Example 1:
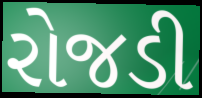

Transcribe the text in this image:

રોજડી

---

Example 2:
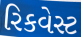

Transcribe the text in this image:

રિકવેસ્ટ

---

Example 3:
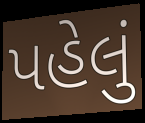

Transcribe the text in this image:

પહેલું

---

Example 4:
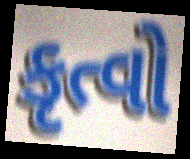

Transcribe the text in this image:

કૃત્વો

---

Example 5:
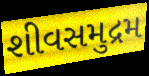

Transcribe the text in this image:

શીવસમુદ્રમ